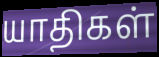
யாதிகள்